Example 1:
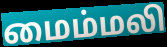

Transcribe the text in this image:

மைம்மலி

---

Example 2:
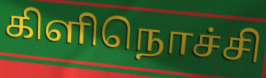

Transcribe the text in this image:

கிளிநொச்சி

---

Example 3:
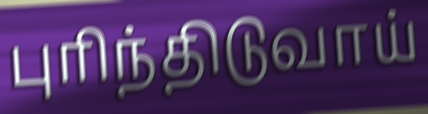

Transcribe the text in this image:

புரிந்திடுவாய்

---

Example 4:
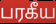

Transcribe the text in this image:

பரகீய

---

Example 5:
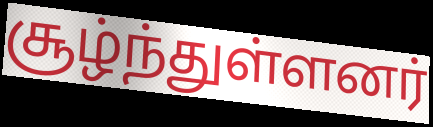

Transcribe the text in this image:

சூழ்ந்துள்ளனர்